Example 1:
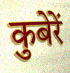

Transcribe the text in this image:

कुबेरें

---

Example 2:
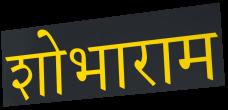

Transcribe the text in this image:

शोभाराम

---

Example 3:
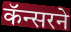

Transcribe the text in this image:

कॅन्सरने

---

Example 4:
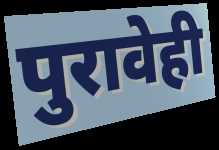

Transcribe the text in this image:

पुरावेही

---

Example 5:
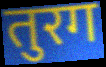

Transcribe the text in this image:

तुरग